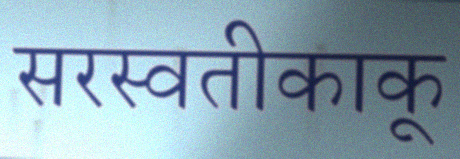
सरस्वतीकाकू